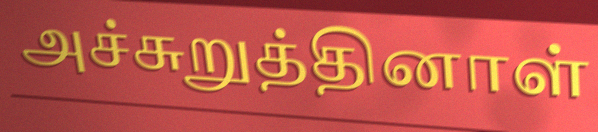
அச்சுறுத்தினாள்